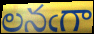
లనఁగా